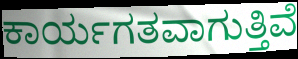
ಕಾರ್ಯಗತವಾಗುತ್ತಿವೆ